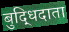
बुद्धिदाता